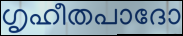
ഗൃഹീതപാദോ